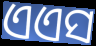
ଏଏସ